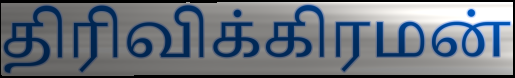
திரிவிக்கிரமன்